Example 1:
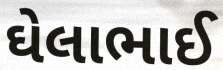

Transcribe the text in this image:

ઘેલાભાઈ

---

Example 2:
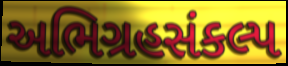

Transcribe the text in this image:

અભિગ્રહસંકલ્પ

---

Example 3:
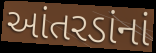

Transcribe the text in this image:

આંતરડાંનાં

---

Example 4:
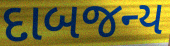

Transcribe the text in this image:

દાબજન્ય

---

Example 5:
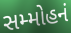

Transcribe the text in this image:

સમ્મોહનં